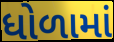
ધોળામાં